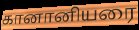
கானானியரை